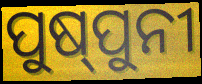
ପୁଷ୍‌ପୁନୀ